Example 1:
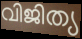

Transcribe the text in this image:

വിജിത്യ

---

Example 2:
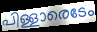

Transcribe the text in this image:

പിള്ളാരെടേം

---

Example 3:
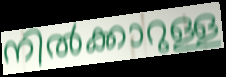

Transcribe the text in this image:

നിൽക്കാറുള്ള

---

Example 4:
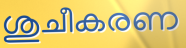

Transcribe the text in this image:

ശുചീകരണ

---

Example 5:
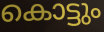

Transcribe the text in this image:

കൊട്ടും